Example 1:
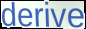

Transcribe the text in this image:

derive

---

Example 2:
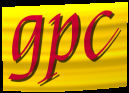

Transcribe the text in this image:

gpc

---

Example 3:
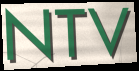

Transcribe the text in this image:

NTV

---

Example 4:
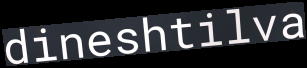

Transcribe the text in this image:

dineshtilva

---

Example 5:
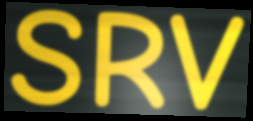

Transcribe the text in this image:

SRV